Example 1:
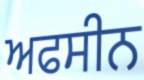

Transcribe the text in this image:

ਅਫਸੀਨ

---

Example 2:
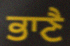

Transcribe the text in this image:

ਭਾਣੈ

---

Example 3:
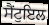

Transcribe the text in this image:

ਸੈਂਟੁਇਲ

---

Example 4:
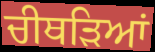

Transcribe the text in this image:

ਚੀਥੜਿਆਂ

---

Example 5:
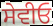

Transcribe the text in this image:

ਸੇਵੀਓ